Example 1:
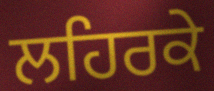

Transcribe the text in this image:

ਲਹਿਰਕੇ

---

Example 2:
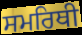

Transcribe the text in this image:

ਸਮਰਿਥੀ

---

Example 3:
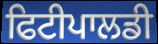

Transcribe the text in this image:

ਫਿਟੀਪਾਲਡੀ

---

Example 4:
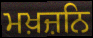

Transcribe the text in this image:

ਮਖ਼ਜ਼ਨਿ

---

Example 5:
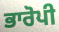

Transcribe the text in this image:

ਭਾਰੋਪੀ